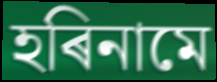
হৰিনামে